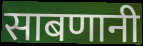
साबणानी